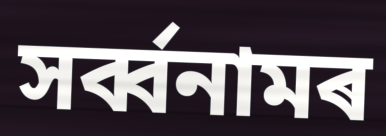
সৰ্ব্বনামৰ